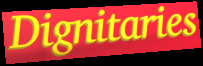
Dignitaries